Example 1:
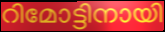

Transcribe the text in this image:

റിമോട്ടിനായി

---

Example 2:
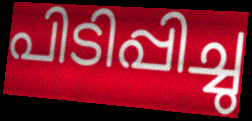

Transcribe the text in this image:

പിടിപ്പിച്ചു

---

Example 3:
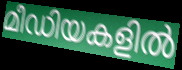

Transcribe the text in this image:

മീഡിയകളിൽ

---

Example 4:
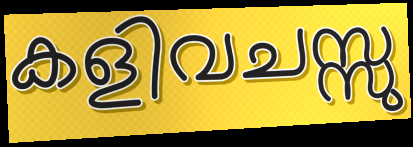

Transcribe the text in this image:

കളിവചസ്സു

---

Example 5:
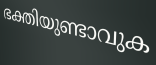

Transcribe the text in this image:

ഭക്തിയുണ്ടാവുക